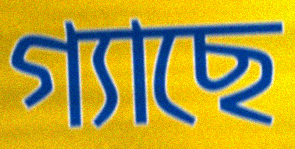
গ্যাছে